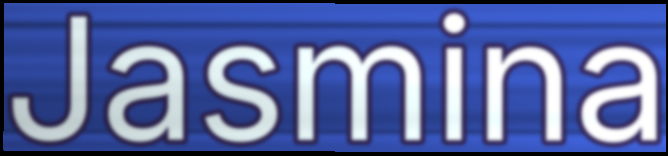
Jasmina